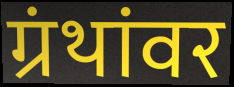
ग्रंथांवर